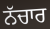
ਨੱਚਾਰ